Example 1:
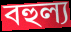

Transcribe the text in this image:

বহুল্য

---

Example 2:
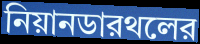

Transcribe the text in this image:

নিয়ানডারথলের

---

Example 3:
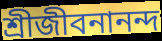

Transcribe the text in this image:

শ্রীজীবনানন্দ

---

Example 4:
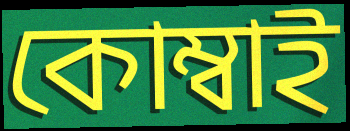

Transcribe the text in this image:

কোম্বাই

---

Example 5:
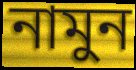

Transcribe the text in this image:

নামুন